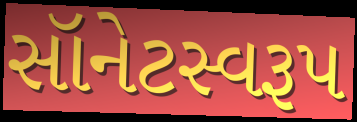
સૉનેટસ્વરૂપ